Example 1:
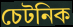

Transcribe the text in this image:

চেটনিক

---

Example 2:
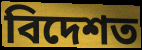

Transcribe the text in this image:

বিদেশত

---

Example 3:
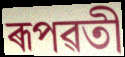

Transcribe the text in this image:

ৰূপৱতী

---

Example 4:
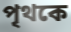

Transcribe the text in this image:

পৃথকে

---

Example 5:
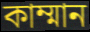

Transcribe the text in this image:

কাম্মান